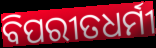
ବିପରୀତଧର୍ମୀ